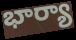
భార్యా